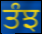
ਤੰਝ